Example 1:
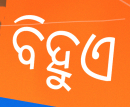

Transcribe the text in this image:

ବିହୁଏ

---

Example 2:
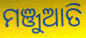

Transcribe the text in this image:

ମଞ୍ଜୁଆତି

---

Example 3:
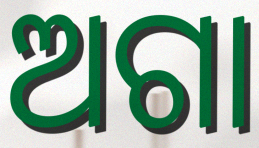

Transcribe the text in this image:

ଅଗା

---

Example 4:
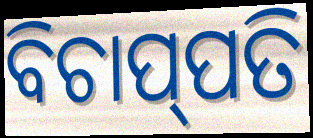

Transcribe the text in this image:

ବିଚାପ୍‌ପତି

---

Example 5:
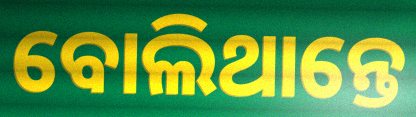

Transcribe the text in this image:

ବୋଲିଥାନ୍ତେ